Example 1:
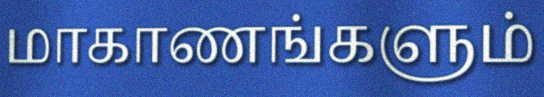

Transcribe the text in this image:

மாகாணங்களும்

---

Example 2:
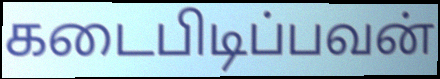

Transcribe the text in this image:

கடைபிடிப்பவன்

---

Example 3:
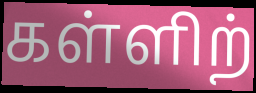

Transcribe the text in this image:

கள்ளிற்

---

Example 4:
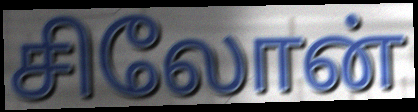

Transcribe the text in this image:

சிலோன்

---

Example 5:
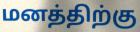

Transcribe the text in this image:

மனத்திற்கு